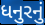
ધનુરનું